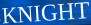
KNIGHT